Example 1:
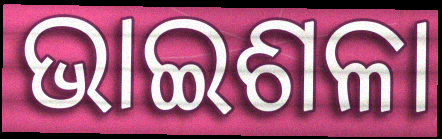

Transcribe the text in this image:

ଭାଇଶଳା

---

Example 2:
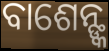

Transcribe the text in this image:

ବାଶେନ୍ଙ୍କ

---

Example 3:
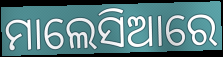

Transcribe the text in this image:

ମାଲେସିଆରେ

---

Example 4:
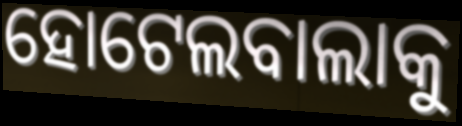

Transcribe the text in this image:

ହୋଟେଲବାଲାକୁ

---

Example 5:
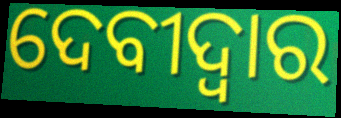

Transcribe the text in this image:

ଦେବୀଦ୍ବାର